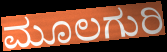
ಮೂಲಗುರಿ